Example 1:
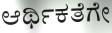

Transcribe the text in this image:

ಆರ್ಥಿಕತೆಗೇ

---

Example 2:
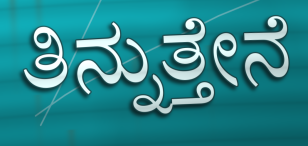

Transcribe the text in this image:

ತಿನ್ನುತ್ತೇನೆ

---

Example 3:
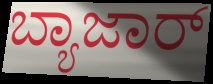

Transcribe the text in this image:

ಬ್ಯಾಜಾರ್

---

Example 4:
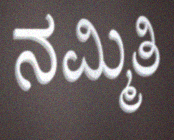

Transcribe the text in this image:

ನಮ್ಮಿತಿ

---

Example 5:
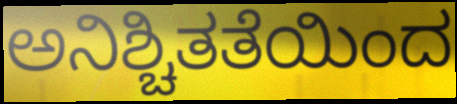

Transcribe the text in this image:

ಅನಿಶ್ಚಿತತೆಯಿಂದ